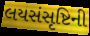
લયસંસૃષ્ટિની